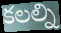
కలల్ని